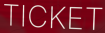
TICKET